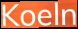
Koeln